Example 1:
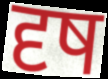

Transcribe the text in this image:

दृष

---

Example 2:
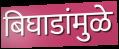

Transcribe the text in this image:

बिघाडांमुळे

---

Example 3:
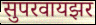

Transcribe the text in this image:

सुपरवायझर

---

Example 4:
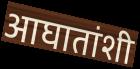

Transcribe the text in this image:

आघातांशी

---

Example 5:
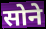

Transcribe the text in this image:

सोने